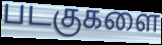
படகுகளை